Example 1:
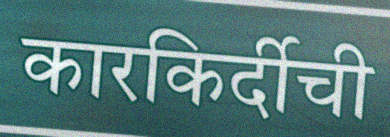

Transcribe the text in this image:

कारकिर्दीची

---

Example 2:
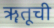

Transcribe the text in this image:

ॠतूची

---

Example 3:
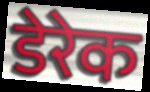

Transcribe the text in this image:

डेरेक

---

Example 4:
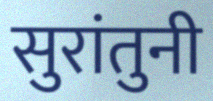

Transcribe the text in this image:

सुरांतुनी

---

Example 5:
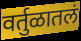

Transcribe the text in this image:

वर्तुळातलं